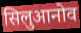
सिलुआनोव